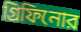
গ্রিফিনোর